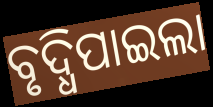
ବୃଦ୍ଧିପାଇଲା